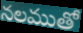
నలముతో